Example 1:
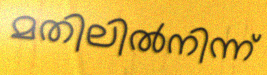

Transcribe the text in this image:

മതിലിൽനിന്ന്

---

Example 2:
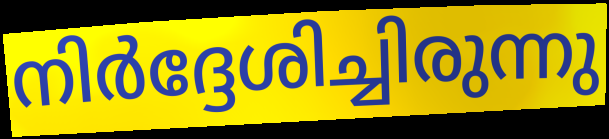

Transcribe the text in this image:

നിർദ്ദേശിച്ചിരുന്നു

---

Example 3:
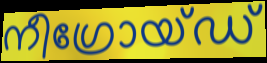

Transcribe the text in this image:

നീഗ്രോയ്ഡ്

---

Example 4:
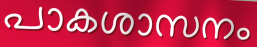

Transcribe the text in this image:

പാകശാസനം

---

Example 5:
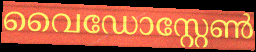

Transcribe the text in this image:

വൈഡോസ്റ്റേൺ